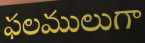
ఫలములుగా